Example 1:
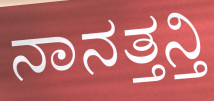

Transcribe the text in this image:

ನಾನತ್ತನ್ತಿ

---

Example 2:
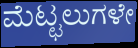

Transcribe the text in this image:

ಮೆಟ್ಟಲುಗಳೇ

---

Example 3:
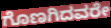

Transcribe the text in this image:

ಗೊಣಗಿದವರೇ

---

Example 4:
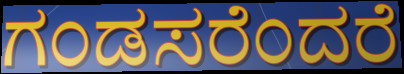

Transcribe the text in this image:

ಗಂಡಸರೆಂದರೆ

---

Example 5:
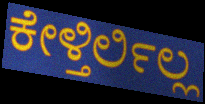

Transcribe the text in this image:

ಕೇಳ್ತಿರ್ಲಿಲ್ಲ